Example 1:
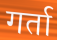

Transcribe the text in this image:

गर्ता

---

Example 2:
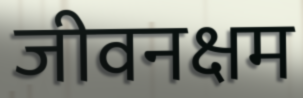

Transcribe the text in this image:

जीवनक्षम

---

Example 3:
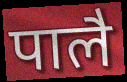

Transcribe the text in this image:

पालै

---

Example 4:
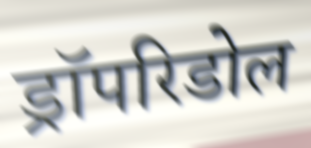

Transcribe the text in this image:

ड्रॉपरिडोल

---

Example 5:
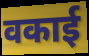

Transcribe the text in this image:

वकाई